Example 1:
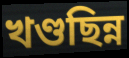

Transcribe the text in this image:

খণ্ডছিন্ন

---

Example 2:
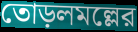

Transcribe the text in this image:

তোড়লমল্লের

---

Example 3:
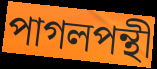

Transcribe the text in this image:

পাগলপন্থী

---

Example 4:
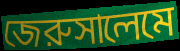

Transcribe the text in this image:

জেরুসালেমে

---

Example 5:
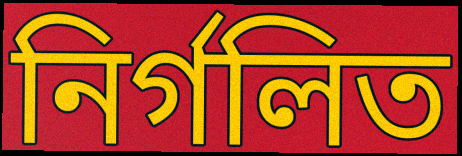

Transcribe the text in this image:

নির্গলিত